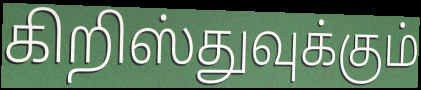
கிறிஸ்துவுக்கும்